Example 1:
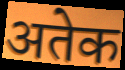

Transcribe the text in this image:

अतेक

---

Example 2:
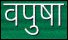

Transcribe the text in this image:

वपुषा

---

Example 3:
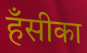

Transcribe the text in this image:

हँसीका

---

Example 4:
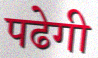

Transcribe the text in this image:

पढेगी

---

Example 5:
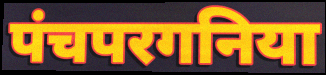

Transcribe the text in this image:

पंचपरगनिया